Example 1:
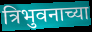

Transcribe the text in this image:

त्रिभुवनाच्या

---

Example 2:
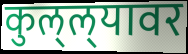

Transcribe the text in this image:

कुल्ल्यावर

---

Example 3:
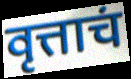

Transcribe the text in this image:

वृत्ताचं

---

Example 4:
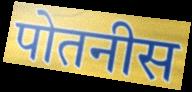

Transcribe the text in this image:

पोतनीस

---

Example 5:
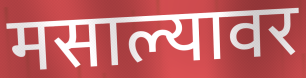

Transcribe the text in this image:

मसाल्यावर